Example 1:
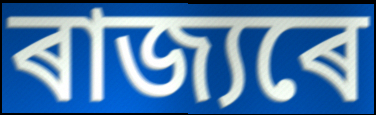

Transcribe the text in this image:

ৰাজ্যৰে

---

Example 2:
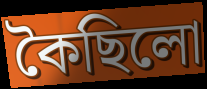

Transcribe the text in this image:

কৈছিলো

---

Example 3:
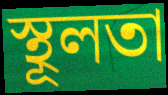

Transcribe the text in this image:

স্থূলতা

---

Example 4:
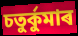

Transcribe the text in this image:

চতুৰ্কুমাৰ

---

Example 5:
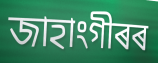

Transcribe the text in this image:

জাহাংগীৰৰ